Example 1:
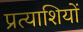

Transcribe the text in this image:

प्रत्याशियों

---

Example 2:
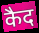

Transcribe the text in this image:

कैद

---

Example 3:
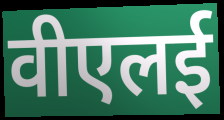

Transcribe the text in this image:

वीएलई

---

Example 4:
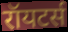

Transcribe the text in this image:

रॉयटर्स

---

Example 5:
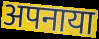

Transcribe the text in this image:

अपनाया